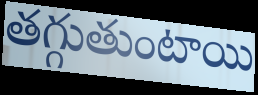
తగ్గుతుంటాయి